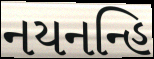
નયનન્હિ